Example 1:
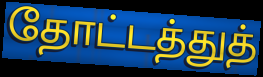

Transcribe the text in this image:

தோட்டத்துத்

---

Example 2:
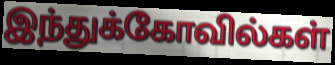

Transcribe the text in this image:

இந்துக்கோவில்கள்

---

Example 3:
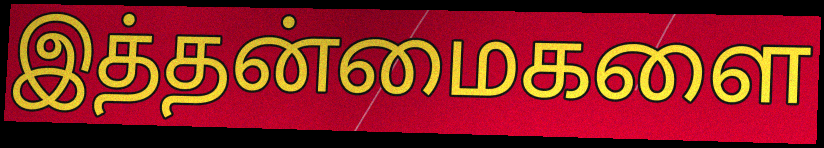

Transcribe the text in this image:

இத்தன்மைகளை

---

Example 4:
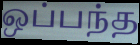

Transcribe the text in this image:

ஒப்பந்த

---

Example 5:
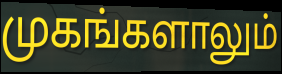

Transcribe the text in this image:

முகங்களாலும்